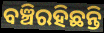
ବଞ୍ଚିରହିଛନ୍ତି